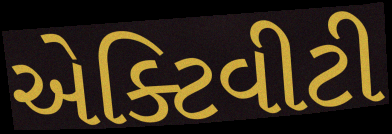
એક્ટિવીટી